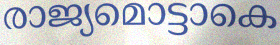
രാജ്യമൊട്ടാകെ